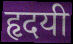
हृदयी